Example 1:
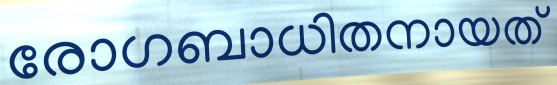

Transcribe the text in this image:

രോഗബാധിതനായത്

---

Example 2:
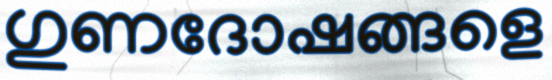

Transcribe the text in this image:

ഗുണദോഷങ്ങളെ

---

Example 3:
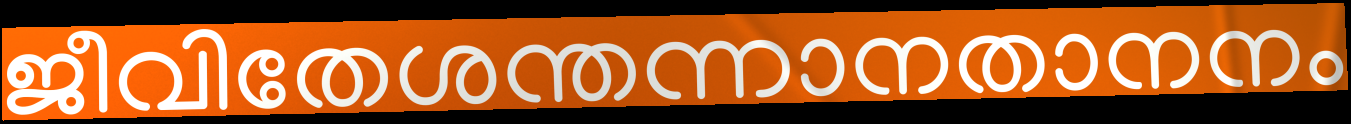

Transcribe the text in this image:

ജീവിതേശന്തന്നാനതാനനം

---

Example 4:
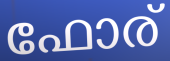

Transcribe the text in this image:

ഫോര്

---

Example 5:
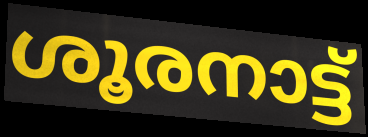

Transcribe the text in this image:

ശൂരനാട്ട്